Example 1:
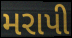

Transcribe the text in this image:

મરાપી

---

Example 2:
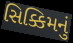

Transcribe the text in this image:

સિક્કિમનું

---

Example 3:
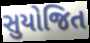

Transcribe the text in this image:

સુયોજિત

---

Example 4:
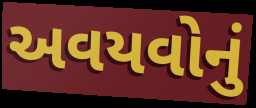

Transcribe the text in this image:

અવયવોનું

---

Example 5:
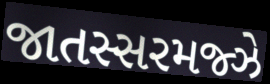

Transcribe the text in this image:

જાતસ્સરમજ્ઝે